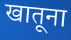
खातूना